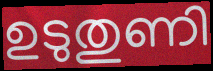
ഉടുതുണി